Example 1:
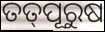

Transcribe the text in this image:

ତତ୍‌ପୂରୁଷ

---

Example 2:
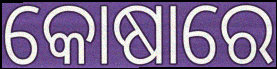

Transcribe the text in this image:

କୋଷାରେ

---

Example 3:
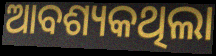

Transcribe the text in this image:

ଆବଶ୍ୟକଥିଲା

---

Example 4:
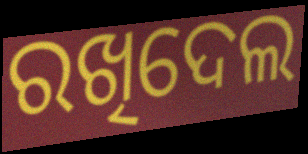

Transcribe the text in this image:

ରଖିଦେଲ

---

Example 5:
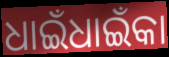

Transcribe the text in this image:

ଧାଇଁଧାଇଁକା